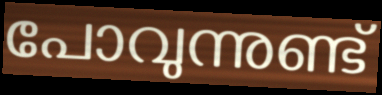
പോവുന്നുണ്ട്